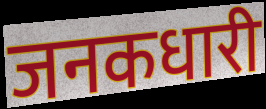
जनकधारी